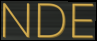
NDE